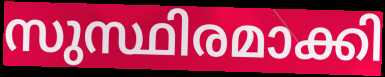
സുസ്ഥിരമാക്കി